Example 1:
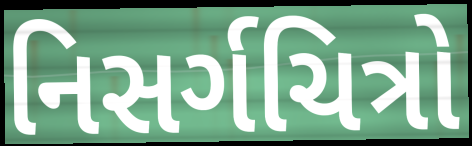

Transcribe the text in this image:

નિસર્ગચિત્રો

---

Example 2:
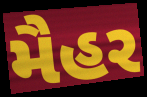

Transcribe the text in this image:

મૈહર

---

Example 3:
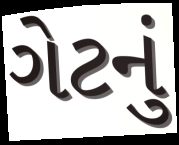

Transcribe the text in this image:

ગેટનું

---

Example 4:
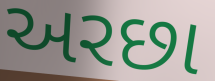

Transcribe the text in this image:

અરછા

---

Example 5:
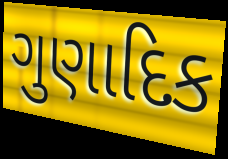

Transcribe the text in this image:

ગુણાદિક